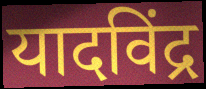
यादविंद्र